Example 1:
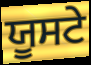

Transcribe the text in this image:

ਯੂਸਟੇ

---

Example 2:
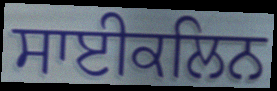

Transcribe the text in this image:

ਸਾਈਕਲਿਨ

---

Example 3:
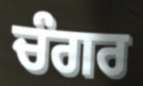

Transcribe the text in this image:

ਚੰਗਰ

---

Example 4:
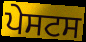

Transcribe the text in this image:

ਪੇਸਟਸ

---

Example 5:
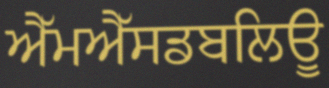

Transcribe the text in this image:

ਐੱਮਐੱਸਡਬਲਿਊ